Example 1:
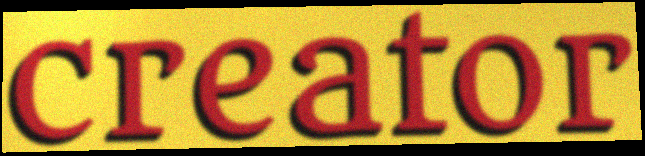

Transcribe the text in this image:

creator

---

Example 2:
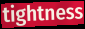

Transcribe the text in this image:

tightness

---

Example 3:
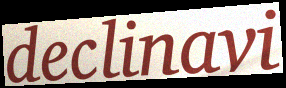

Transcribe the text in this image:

declinavi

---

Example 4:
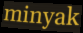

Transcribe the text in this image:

minyak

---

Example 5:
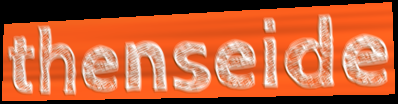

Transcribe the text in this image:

thenseide